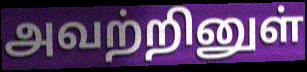
அவற்றினுள்